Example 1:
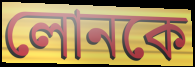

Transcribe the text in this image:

লোনকে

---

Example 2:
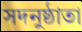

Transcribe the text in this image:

সদনুষ্ঠাতা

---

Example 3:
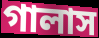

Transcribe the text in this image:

গালাস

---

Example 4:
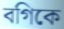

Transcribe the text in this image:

বগিকে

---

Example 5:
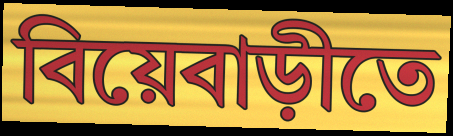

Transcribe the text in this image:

বিয়েবাড়ীতে